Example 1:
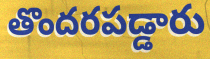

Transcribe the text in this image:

తొందరపడ్డారు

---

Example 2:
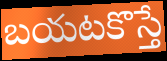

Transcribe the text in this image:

బయటకొస్తే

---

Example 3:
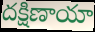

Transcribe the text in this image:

దక్షిణాయా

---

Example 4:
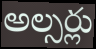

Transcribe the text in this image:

అల్సర్లు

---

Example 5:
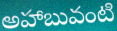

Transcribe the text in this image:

అహాబువంటి